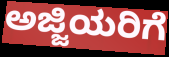
ಅಜ್ಜಿಯರಿಗೆ